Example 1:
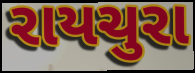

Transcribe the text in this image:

રાયચુરા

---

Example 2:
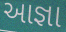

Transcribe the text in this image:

આજ્ઞા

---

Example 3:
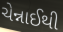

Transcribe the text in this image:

ચેન્નાઈથી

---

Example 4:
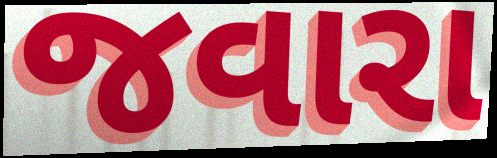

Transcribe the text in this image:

જવારા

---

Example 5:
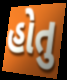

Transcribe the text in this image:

હોતુ